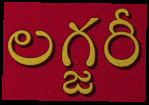
లగ్జరీ